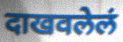
दाखवलेलं